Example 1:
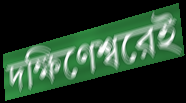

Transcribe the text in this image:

দক্ষিণেশ্বরেই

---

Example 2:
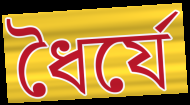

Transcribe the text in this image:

ধৈর্যে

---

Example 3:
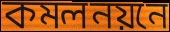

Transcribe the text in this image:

কমলনয়নে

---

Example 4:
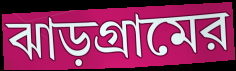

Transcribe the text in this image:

ঝাড়গ্রামের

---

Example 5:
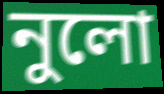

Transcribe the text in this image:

নুলো